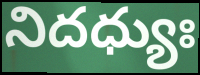
నిదధ్యుః